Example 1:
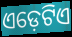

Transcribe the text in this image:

ଏଡ଼େଟିଏ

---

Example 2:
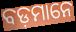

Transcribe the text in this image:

ବଡ଼ମାନେ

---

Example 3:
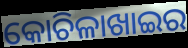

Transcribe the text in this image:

କୋଚିଳାଖାଇର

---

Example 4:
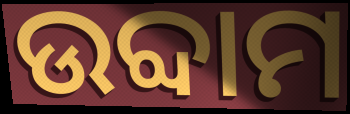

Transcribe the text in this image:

ଉବ୍ଦାମ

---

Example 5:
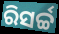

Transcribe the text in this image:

ରିସର୍ଚ୍ଚ